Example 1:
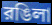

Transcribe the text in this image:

রঙিলা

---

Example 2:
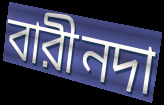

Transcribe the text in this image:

বারীনদা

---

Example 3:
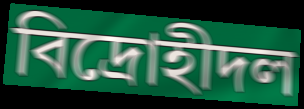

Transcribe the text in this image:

বিদ্রোহীদল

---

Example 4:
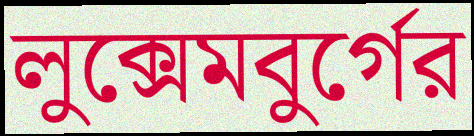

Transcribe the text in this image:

লুক্সেমবুর্গের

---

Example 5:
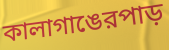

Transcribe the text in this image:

কালাগাঙেরপাড়